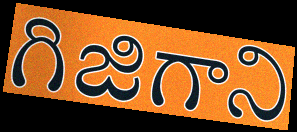
గిజిగాని